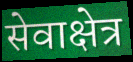
सेवाक्षेत्र